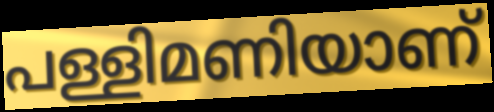
പള്ളിമണിയാണ്